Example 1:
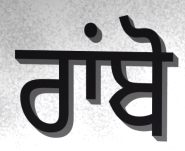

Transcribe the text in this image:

ਰਾਂਬੋ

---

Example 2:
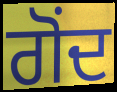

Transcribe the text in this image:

ਗੋਂਦ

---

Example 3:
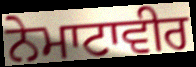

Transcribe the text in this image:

ਨੇਮਾਟਾਵੀਰ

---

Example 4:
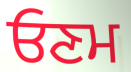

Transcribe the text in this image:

ਓਣਮ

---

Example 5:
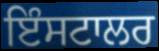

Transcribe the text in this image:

ਇੰਸਟਾਲਰ